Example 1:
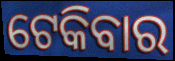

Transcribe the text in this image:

ଟେକିବାର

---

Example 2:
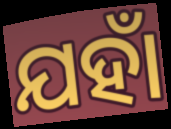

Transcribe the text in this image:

ଯହାଁ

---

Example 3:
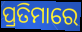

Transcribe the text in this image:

ପ୍ରତିମାରେ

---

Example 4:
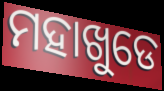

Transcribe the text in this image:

ମହାଖୁଡେ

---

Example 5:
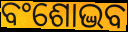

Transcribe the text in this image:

ବଂଶୋଦ୍ଭବ